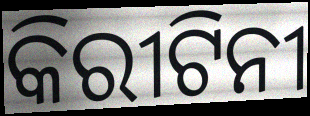
କିରୀଟିନୀ